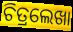
ଚିତ୍ରଲେଖା